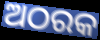
ଅଠରକ